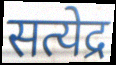
सत्येद्र